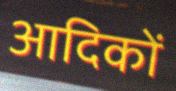
आदिकों